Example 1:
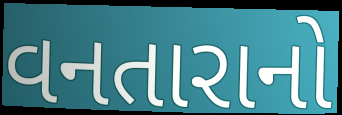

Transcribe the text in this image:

વનતારાનો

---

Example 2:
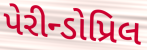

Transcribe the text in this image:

પેરીન્ડોપ્રિલ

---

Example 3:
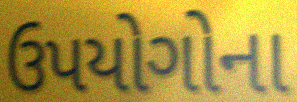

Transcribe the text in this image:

ઉપયોગોના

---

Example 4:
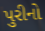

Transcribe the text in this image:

પુરીનો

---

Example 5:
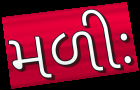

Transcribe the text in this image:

મળીઃ